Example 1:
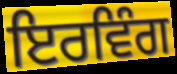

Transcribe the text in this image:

ਇਰਵਿੰਗ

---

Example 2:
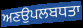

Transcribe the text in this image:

ਅਣਉਪਲਬਧਤਾ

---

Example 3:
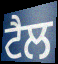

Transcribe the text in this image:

ਟੈਲ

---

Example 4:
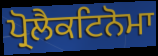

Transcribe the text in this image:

ਪ੍ਰੋਲੈਕਟਿਨੋਮਾ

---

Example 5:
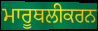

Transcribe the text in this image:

ਮਾਰੂਥਲੀਕਰਨ